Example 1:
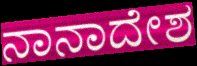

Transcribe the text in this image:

ನಾನಾದೇಶ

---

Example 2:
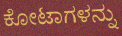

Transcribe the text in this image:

ಕೋಟಾಗಳನ್ನು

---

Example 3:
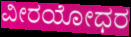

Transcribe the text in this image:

ವೀರಯೋಧರ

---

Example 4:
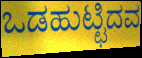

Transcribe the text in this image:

ಒಡಹುಟ್ಟಿದವ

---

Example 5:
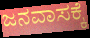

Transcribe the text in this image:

ಜನವಾಸಕ್ಕೆ